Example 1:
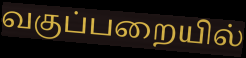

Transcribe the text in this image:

வகுப்பறையில்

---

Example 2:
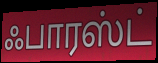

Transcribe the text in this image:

ஃபாரஸ்ட்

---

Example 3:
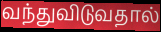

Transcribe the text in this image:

வந்துவிடுவதால்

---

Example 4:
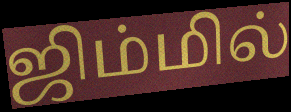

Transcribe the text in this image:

ஜிம்மில்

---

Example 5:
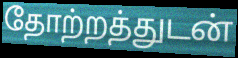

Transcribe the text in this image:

தோற்றத்துடன்